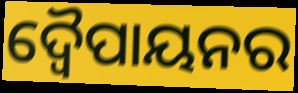
ଦ୍ୱୈପାୟନର